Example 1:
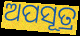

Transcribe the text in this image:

ଅପସୂତ୍ର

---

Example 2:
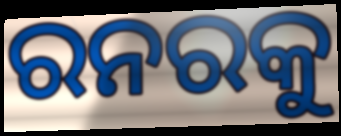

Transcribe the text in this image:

ରନରକୁ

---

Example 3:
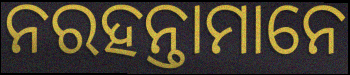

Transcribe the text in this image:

ନରହନ୍ତାମାନେ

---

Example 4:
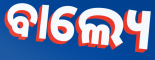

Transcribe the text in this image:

ବାଲ୍ୟେ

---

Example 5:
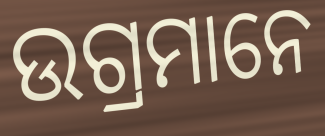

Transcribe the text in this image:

ଉଗ୍ରମାନେ